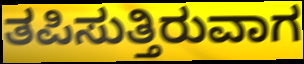
ತಪಿಸುತ್ತಿರುವಾಗ